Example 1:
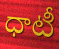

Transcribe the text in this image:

ధాటీ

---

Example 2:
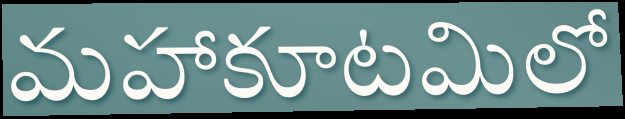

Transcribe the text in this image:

మహాకూటమిలో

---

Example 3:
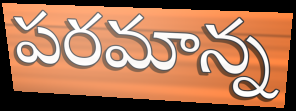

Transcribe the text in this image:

పరమాన్న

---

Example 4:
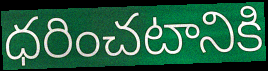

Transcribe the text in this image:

ధరించటానికి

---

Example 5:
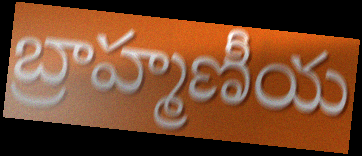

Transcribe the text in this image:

బ్రాహ్మణీయ